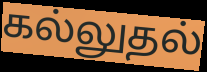
கல்லுதல்